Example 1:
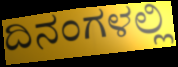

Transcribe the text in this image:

ದಿನಂಗಳಲ್ಲಿ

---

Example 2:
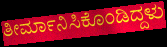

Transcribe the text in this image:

ತೀರ್ಮಾನಿಸಿಕೊಂಡಿದ್ದಳು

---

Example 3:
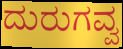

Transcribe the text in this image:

ದುರುಗವ್ವ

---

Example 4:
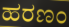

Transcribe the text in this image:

ಹರಣಂ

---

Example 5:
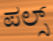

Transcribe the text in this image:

ಪಲ್ಸ್